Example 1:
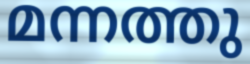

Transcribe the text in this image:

മന്നത്തു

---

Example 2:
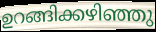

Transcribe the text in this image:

ഉറങ്ങിക്കഴിഞ്ഞു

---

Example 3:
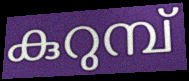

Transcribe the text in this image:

കുറുമ്പ്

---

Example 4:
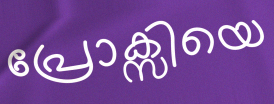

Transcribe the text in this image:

പ്രോക്സിയെ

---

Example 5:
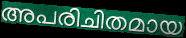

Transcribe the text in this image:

അപരിചിതമായ